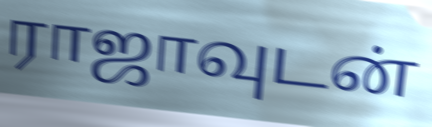
ராஜாவுடன்